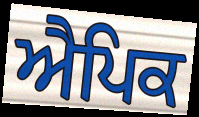
ਐਪਿਕ